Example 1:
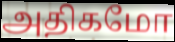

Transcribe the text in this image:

அதிகமோ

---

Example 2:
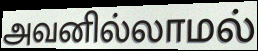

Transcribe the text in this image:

அவனில்லாமல்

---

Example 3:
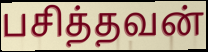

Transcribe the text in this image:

பசித்தவன்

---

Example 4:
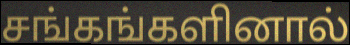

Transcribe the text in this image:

சங்கங்களினால்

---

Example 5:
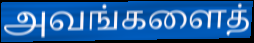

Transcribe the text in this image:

அவங்களைத்